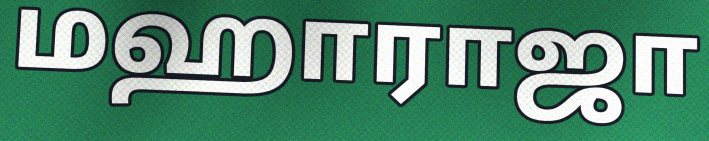
மஹாராஜா